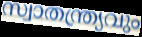
സ്വാതന്ത്ര്യവും